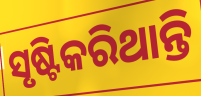
ସୃଷ୍ଟିକରିଥାନ୍ତି